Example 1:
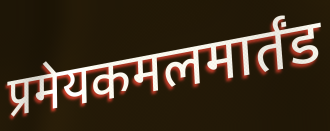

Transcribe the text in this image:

प्रमेयकमलमार्तंड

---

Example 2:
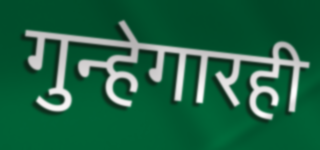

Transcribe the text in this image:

गुन्हेगारही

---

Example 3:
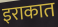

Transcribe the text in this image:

इराकात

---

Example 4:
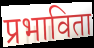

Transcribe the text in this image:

प्रभाविता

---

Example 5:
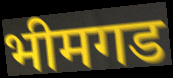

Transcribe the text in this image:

भीमगड